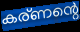
കര്ണന്റെ